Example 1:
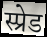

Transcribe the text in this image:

स्प्रेड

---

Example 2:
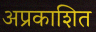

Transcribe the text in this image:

अप्रकाशित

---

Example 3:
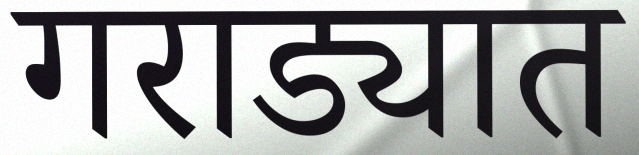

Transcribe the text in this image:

गराड्यात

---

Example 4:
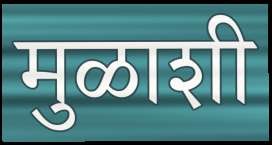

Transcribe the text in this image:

मुळाशी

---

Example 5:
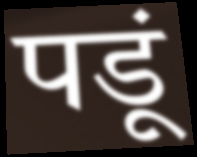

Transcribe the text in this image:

पडूं